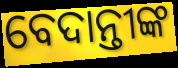
ବେଦାନ୍ତୀଙ୍କ